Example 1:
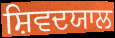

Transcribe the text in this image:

ਸ਼ਿਵਦਯਾਲ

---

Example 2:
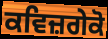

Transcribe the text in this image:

ਕਵਿਜ਼ਗੇਕੋ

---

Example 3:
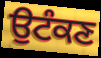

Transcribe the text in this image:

ਉਟੰਕਣ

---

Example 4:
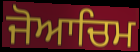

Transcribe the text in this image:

ਜੋਆਚਿਮ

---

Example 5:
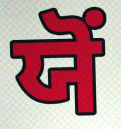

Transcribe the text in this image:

ਯੋਂ